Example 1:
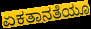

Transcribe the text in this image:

ಏಕತಾನತೆಯೂ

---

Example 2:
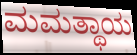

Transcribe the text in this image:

ಮಮತ್ಥಾಯ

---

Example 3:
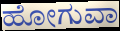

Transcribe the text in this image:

ಹೋಗುವಾ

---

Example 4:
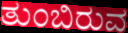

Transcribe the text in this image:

ತುಂಬಿರುವ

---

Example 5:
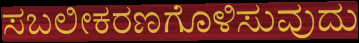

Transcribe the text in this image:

ಸಬಲೀಕರಣಗೊಳಿಸುವುದು